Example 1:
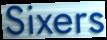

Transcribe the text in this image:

Sixers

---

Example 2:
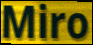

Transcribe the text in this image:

Miro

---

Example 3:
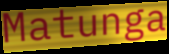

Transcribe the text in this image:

Matunga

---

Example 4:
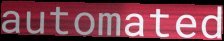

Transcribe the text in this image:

automated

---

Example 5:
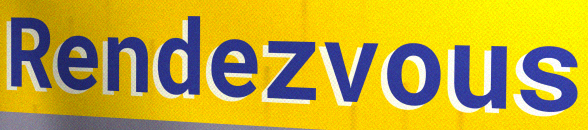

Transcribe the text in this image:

Rendezvous